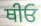
ਥੀਓ